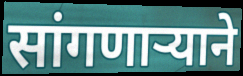
सांगणार्‍याने